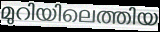
മുറിയിലെത്തിയ